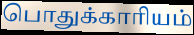
பொதுக்காரியம்